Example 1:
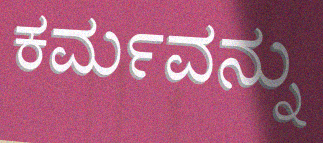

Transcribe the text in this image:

ಕರ್ಮವನ್ನು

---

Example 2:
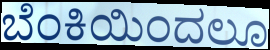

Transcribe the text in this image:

ಬೆಂಕಿಯಿಂದಲೂ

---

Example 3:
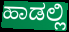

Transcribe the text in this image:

ಹಾಡಲ್ಲಿ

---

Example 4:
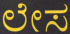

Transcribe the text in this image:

ಲೇಸ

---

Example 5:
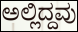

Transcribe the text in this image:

ಅಲ್ಲಿದ್ದವು